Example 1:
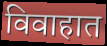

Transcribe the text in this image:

विवाहात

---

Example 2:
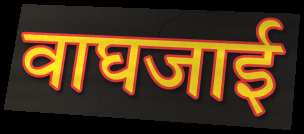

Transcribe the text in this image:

वाघजाई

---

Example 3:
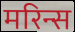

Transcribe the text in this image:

मरिन्स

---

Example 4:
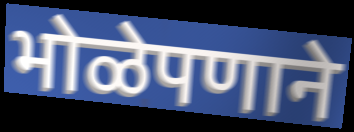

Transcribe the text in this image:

भोळेपणाने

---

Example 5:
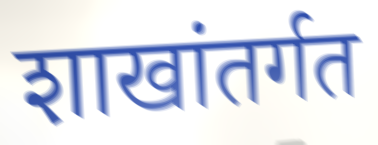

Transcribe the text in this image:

शाखांतर्गत